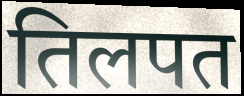
तिलपत